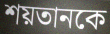
শয়তানকে